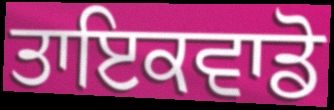
ਤਾਇਕਵਾਡੋ